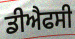
ਡੀਐਫਸੀ